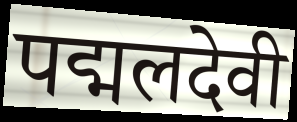
पद्मलदेवी